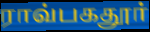
ராவ்பகதூர்